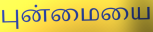
புன்மையை